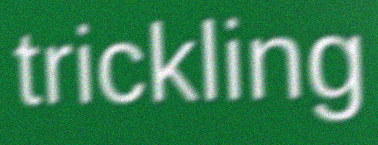
trickling